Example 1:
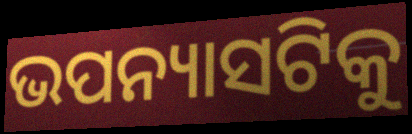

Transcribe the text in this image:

ଭପନ୍ୟାସଟିକୁ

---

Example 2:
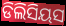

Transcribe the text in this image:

ଡିଲିସିୟସ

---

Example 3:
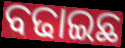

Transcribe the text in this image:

ବଢାଇଛ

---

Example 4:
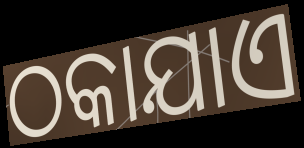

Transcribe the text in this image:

ଠକାଯାଏ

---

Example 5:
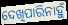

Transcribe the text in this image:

ଦେଖିପାରିନାହୁଁ